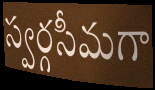
స్వర్గసీమగా